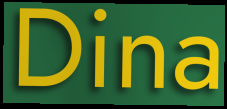
Dina